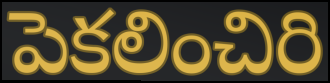
పెకలించిరి